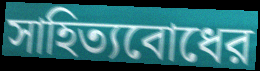
সাহিত্যবোধের